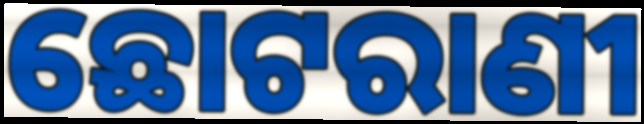
ଛୋଟରାଣୀ